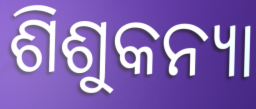
ଶିଶୁକନ୍ଯା